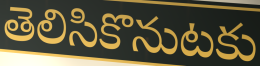
తెలిసికొనుటకు